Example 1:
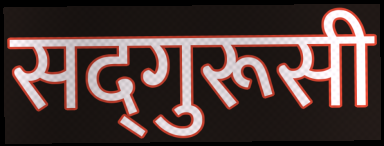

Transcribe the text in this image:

सद्‍गुरूसी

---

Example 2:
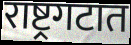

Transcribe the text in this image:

राष्ट्रगटात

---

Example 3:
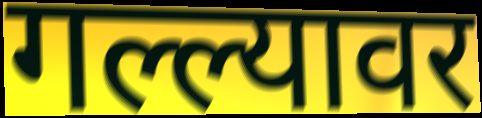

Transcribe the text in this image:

गल्ल्यावर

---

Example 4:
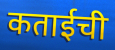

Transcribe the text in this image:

कताईची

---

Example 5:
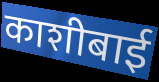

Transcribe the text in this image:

काशीबाई